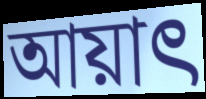
আয়াৎ